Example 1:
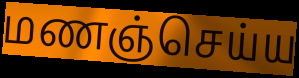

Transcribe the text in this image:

மணஞ்செய்ய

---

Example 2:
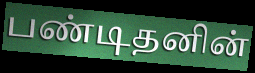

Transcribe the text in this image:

பண்டிதனின்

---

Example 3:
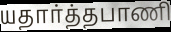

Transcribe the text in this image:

யதார்த்தபாணி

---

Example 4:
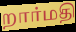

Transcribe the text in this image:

றார்மதி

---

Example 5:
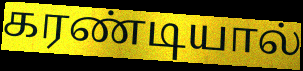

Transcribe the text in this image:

கரண்டியால்